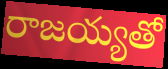
రాజయ్యతో